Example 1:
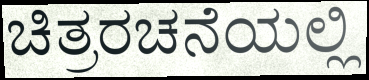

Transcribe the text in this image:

ಚಿತ್ರರಚನೆಯಲ್ಲಿ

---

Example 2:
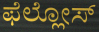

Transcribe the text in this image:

ಫೆಲ್ಲೋಸ್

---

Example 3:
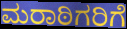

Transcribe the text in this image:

ಮರಾಠಿಗರಿಗೆ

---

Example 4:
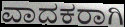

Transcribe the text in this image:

ವಾದಕರಾಗಿ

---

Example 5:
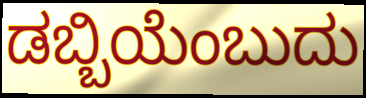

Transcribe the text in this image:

ಡಬ್ಬಿಯೆಂಬುದು